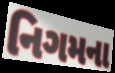
નિગમના